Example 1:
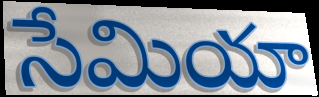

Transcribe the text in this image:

సేమియా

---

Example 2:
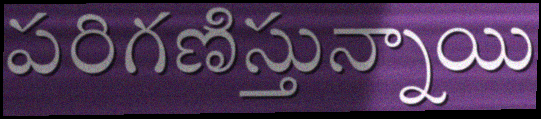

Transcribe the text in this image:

పరిగణిస్తున్నాయి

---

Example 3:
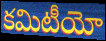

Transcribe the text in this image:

కమిటీయో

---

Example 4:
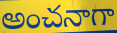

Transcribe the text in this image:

అంచనాగా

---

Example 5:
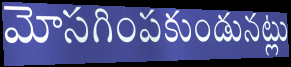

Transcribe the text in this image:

మోసగింపకుండునట్లు